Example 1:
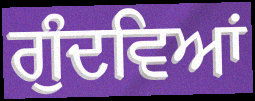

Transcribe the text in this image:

ਗੁੰਦਵਿਆਂ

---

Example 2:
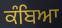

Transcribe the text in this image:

ਕੰਬਿਆ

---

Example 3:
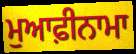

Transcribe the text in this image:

ਮੁਆਫ਼ੀਨਾਮਾ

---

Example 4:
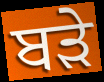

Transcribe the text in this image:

ਬਡ਼ੇ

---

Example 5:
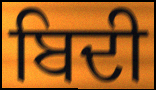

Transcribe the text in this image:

ਬਿਦੀ